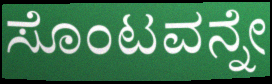
ಸೊಂಟವನ್ನೇ